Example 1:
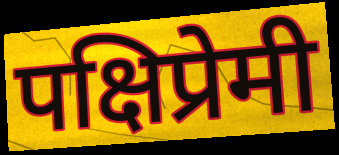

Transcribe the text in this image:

पक्षिप्रेमी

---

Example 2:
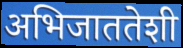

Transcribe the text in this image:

अभिजाततेशी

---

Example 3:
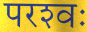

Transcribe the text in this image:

परश्वः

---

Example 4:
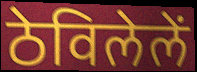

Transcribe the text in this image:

ठेविलेलें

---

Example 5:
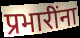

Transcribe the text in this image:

प्रभारींना